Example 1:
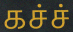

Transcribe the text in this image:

கச்ச்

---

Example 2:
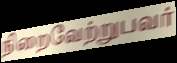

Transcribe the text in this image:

நிறைவேற்றுபவர்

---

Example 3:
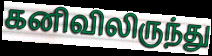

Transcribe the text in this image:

கனிவிலிருந்து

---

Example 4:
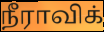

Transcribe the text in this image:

நீராவிக்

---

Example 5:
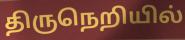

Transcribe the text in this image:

திருநெறியில்